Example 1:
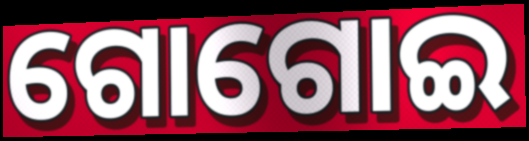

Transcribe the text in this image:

ଗୋଗୋଇ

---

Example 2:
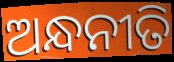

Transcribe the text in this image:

ଅନ୍ଧନୀତି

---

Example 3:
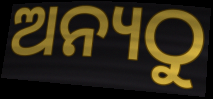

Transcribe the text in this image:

ଅନ୍ୟଠୁ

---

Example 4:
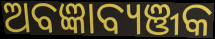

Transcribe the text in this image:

ଅବଜ୍ଞାବ୍ୟଞ୍ଜକ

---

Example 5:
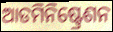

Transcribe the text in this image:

ଆଡମିନିଷ୍ଟ୍ରେଶନ